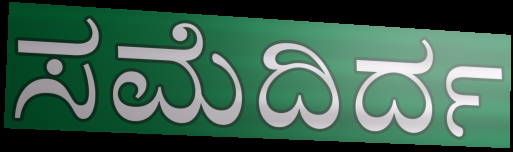
ಸಮೆದಿರ್ದ